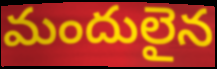
మందులైన